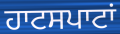
ਹਾਟਸਪਾਟਾਂ